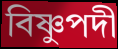
বিষ্ণুপদী